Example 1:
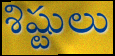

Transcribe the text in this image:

శిష్టులు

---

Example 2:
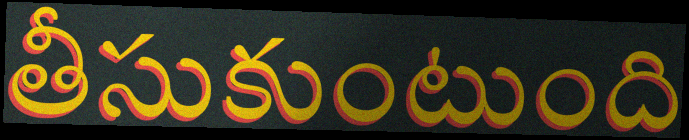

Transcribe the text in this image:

తీసుకుంటుంది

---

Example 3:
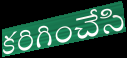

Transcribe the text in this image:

కరిగించేసి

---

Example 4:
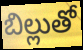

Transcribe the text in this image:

బిల్లుతో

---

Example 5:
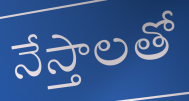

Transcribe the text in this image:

నేస్తాలతో